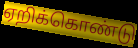
ஏறிக்கொண்டு